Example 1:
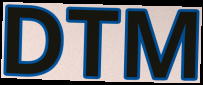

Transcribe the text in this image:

DTM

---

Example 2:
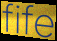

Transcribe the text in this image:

fife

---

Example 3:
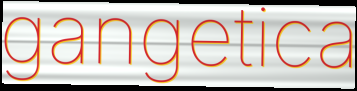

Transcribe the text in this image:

gangetica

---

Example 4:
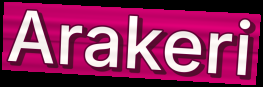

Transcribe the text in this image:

Arakeri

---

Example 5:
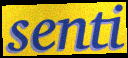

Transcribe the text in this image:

senti